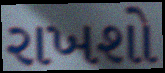
રાખશો